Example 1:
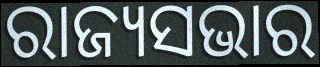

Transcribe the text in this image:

ରାଜ୍ୟସଭାର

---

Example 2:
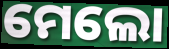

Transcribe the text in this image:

ମେଲୋ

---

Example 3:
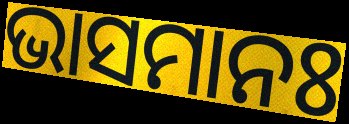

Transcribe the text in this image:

ଭାସମାନଃ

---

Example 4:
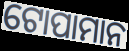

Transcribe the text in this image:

ଟୋପାମାନ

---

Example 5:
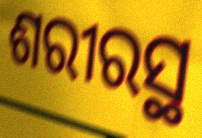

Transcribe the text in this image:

ଶରୀରସ୍ଥ